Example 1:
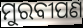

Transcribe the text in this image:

ମୁରବୀପଣ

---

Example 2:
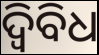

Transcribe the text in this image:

ଦ୍ୱିବିଧ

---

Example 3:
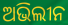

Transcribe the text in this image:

ଅଭିଲୀନ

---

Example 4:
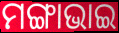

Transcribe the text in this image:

ମଙ୍ଗାଭାଇ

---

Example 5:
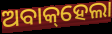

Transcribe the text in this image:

ଅବାକ୍‌ହେଲା